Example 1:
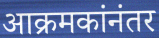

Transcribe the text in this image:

आक्रमकांनंतर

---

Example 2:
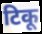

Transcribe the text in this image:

टिकू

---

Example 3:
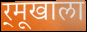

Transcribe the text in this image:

र्मूखाला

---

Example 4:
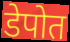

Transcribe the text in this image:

डेपोत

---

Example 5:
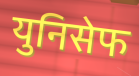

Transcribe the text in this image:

युनिसेफ